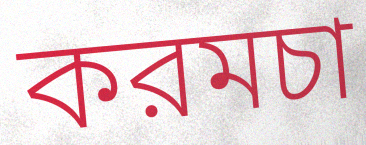
করমচা